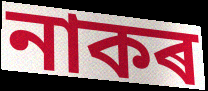
নাকৰ